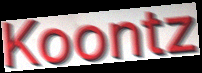
Koontz